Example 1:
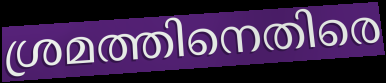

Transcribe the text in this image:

ശ്രമത്തിനെതിരെ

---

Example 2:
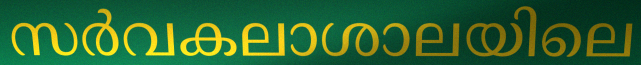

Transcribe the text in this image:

സർവകലാശാലയിലെ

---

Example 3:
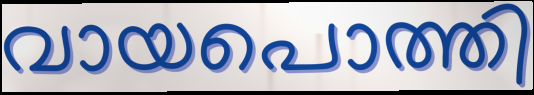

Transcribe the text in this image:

വായപൊത്തി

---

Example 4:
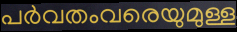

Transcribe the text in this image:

പർവതംവരെയുമുള്ള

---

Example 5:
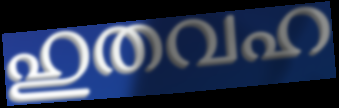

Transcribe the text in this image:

ഹുതവഹ